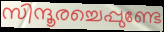
സിന്ദൂരച്ചെപ്പുണ്ടേ